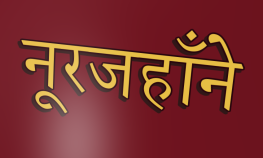
नूरजहाँने